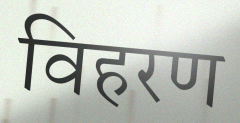
विहरण